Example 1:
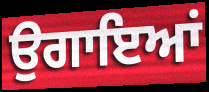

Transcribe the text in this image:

ਉਗਾਇਆਂ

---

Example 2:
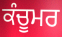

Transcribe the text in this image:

ਕੰਚੂਮਰ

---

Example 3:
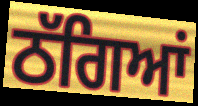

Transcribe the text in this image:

ਠੱਗਿਆਂ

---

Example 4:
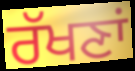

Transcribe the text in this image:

ਰੱਖਣਾਂ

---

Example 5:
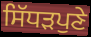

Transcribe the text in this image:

ਸਿੱਧੜਪੁਣੇ